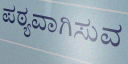
ಪಠ್ಯವಾಗಿಸುವ